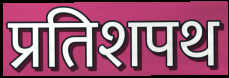
प्रतिशपथ